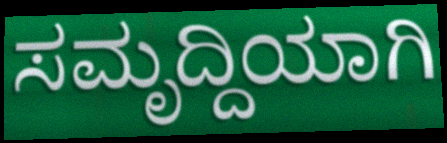
ಸಮೃದ್ದಿಯಾಗಿ